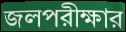
জলপরীক্ষার